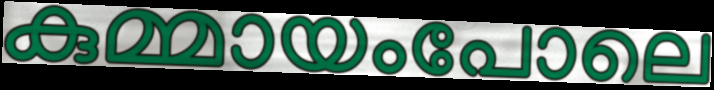
കുമ്മായംപോലെ